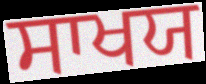
ਸਾਖਯ